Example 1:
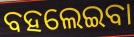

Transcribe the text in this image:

ବହଲେଇବା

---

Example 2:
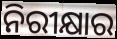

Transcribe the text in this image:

ନିରୀକ୍ଷାର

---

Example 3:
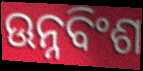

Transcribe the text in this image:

ଊନ୍ନବିଂଶ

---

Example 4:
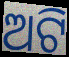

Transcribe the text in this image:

ଅଟି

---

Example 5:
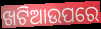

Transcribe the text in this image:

ଖଟିଆଉପରେ